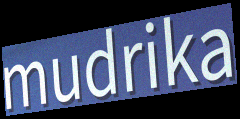
mudrika